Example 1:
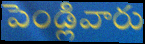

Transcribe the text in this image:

పెండ్లివారు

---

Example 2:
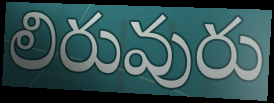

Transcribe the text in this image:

లిరువురు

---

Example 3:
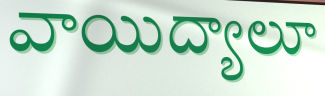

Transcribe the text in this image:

వాయిద్యాలూ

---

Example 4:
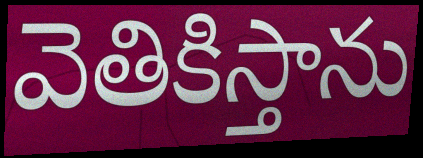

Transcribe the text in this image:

వెతికిస్తాను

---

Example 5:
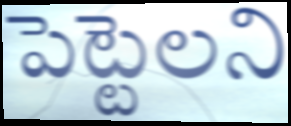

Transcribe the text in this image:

పెట్టెలని